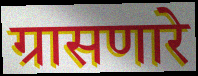
ग्रासणारे